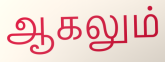
ஆகலும்